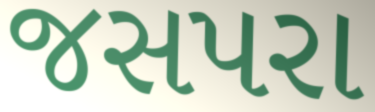
જસપરા